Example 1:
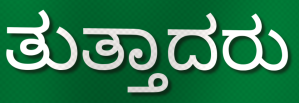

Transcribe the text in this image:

ತುತ್ತಾದರು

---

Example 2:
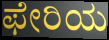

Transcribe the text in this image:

ಫೇರಿಯ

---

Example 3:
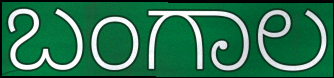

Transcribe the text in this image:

ಬಂಗಾಲ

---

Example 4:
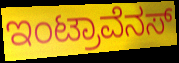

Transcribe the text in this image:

ಇಂಟ್ರಾವೆನಸ್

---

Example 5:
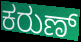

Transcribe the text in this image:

ಕರುಣ್